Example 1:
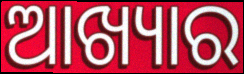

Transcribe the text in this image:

ଆଖ୍ୟାର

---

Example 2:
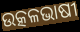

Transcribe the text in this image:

ଉତ୍କଳଭାଷୀ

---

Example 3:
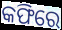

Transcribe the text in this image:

କଫିରେ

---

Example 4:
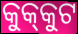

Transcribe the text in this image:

କୁକ୍‍କୁଟ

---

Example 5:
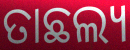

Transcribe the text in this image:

ତାଛଲ୍ୟ